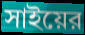
সাইয়ের